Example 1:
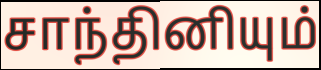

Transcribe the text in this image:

சாந்தினியும்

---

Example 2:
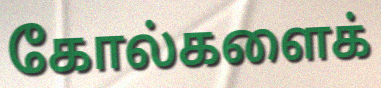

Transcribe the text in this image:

கோல்களைக்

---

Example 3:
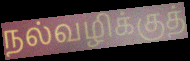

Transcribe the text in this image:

நல்வழிக்குத்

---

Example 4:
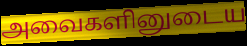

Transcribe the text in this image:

அவைகளினுடைய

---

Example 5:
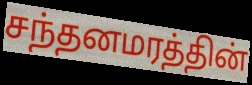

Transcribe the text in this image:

சந்தனமரத்தின்